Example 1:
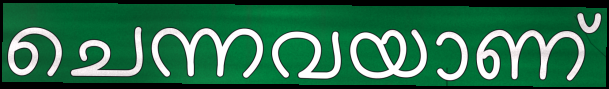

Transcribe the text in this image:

ചെന്നവയാണ്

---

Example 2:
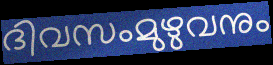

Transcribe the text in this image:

ദിവസംമുഴുവനും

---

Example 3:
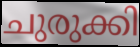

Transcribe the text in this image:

ചുരുക്കി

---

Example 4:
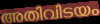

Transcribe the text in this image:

അതിവിടയം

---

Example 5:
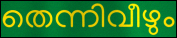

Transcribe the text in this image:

തെന്നിവീഴും